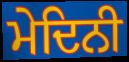
ਮੇਦਿਨੀ